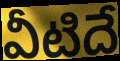
వీటిదే